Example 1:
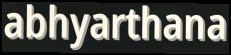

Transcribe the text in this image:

abhyarthana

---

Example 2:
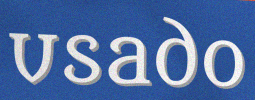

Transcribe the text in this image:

usado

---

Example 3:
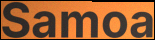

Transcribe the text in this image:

Samoa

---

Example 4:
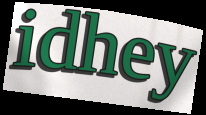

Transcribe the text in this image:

idhey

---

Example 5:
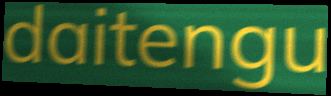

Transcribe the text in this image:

daitengu